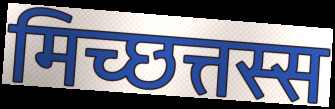
मिच्छत्तस्स